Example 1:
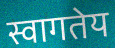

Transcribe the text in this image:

स्वागतेय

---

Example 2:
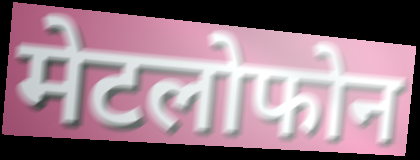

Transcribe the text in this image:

मेटलोफोन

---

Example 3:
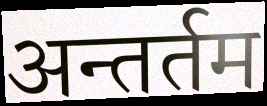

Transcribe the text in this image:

अन्तर्तम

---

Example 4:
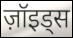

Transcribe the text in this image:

ज़ॉइड्स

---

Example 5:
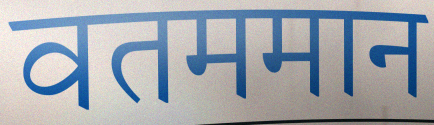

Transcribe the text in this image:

वतममान